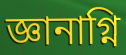
জ্ঞানাগ্নি